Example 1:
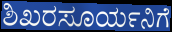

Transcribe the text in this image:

ಶಿಖರಸೂರ್ಯನಿಗೆ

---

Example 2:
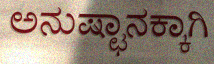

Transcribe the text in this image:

ಅನುಷ್ಟಾನಕ್ಕಾಗಿ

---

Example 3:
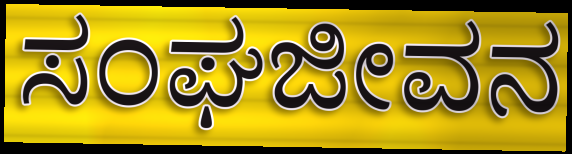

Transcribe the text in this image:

ಸಂಘಜೀವನ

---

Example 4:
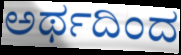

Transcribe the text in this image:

ಅರ್ಥದಿಂದ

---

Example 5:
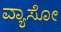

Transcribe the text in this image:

ವ್ಯಾಸೋ